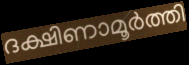
ദക്ഷിണാമൂർത്തി